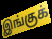
இங்குக்